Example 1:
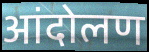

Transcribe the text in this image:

आंदोलण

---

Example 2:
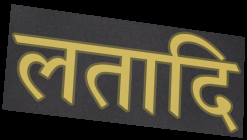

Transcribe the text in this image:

लतादि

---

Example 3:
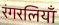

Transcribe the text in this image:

रंगरलियाँ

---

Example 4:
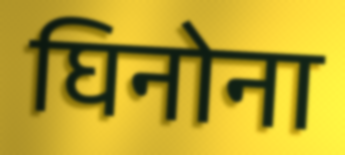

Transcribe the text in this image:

घिनोना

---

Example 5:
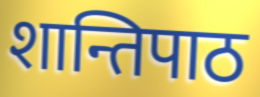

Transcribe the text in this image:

शान्तिपाठ